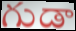
గుడా